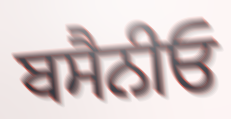
ਬਸੈਨੀਓ